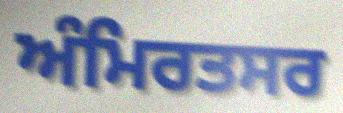
ਅੰਮਿਰਤਸਰ